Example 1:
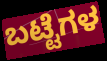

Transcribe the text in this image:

ಬಟ್ಟೆಗಳ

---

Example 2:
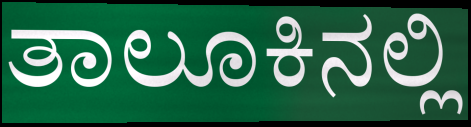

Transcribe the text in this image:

ತಾಲೂಕಿನಲ್ಲಿ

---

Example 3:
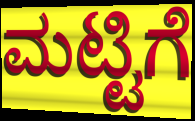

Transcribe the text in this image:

ಮಟ್ಟಿಗೆ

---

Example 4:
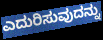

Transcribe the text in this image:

ಎದುರಿಸುವುದನ್ನು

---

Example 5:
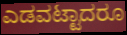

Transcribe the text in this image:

ಎಡವಟ್ಟಾದರೂ